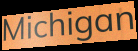
Michigan